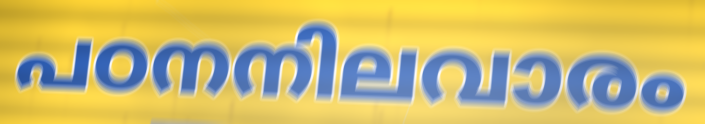
പഠനനിലവാരം